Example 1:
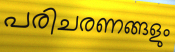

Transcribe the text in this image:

പരിചരണങ്ങളും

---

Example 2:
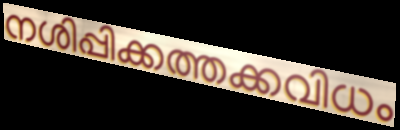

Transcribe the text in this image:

നശിപ്പിക്കത്തക്കവിധം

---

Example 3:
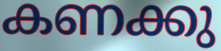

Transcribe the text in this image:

കണക്കു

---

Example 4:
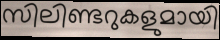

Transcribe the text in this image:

സിലിണ്ടറുകളുമായി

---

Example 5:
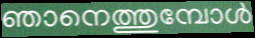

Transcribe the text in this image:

ഞാനെത്തുമ്പോൾ